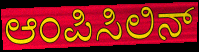
ಆಂಪಿಸಿಲಿನ್